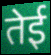
तेई